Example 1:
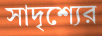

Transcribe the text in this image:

সাদৃশ্যের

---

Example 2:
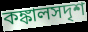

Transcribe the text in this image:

কঙ্কালসদৃশ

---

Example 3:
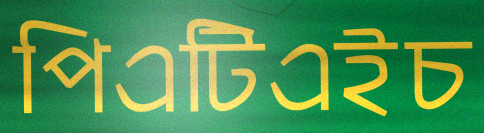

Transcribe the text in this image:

পিএটিএইচ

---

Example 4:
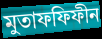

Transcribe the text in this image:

মুতাফফিফীন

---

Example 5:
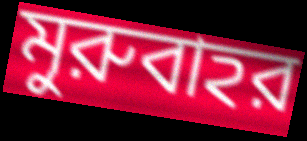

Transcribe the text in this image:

মুরুবাহর